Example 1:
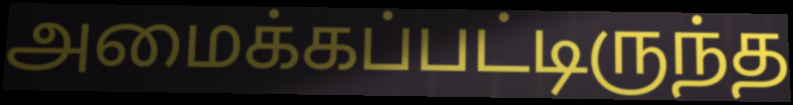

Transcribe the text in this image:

அமைக்கப்பட்டிருந்த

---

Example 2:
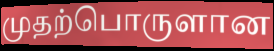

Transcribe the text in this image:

முதற்பொருளான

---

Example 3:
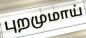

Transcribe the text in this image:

புறமுமாய்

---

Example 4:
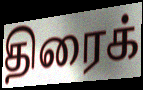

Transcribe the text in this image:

திரைக்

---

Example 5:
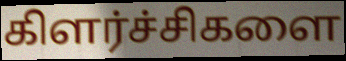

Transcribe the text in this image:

கிளர்ச்சிகளை